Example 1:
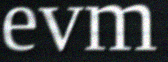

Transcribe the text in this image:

evm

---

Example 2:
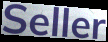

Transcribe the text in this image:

Seller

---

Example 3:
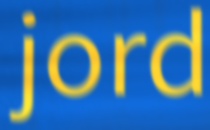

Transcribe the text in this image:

jord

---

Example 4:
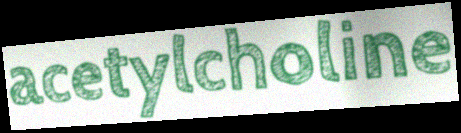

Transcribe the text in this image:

acetylcholine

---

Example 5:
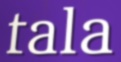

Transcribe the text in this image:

tala